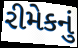
રીમેકનું